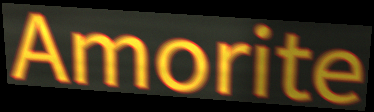
Amorite